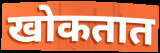
खोकतात